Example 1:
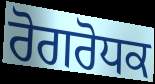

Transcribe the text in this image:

ਰੋਗਰੋਧਕ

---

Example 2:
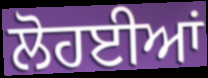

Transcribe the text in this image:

ਲੋਹਈਆਂ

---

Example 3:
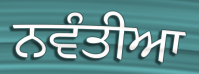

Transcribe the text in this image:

ਨਵੰਤੀਆ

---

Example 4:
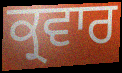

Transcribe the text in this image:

ਕ੍ਰਵਾਰ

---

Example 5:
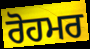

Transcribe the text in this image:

ਰੋਹਮਰ